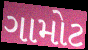
ગામોટ